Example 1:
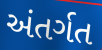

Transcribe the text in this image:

અંતર્ગત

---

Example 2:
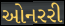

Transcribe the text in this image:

ઓનરરી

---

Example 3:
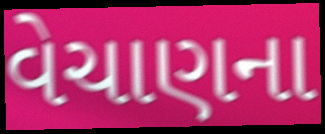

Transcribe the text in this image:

વેચાણના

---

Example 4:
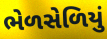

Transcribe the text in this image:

ભેળસેળિયું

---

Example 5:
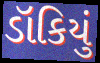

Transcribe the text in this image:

ડૉકિયું